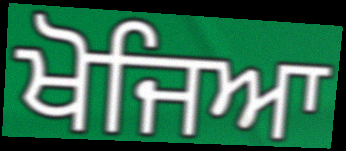
ਖੋਜਿਆ